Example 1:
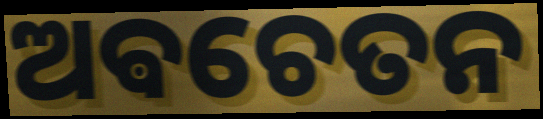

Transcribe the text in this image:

ଅଵଚେତନ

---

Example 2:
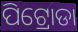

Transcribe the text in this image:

ପିଟ୍ରୋଡା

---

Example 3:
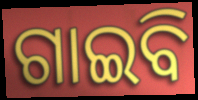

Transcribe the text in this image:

ଗାଇବି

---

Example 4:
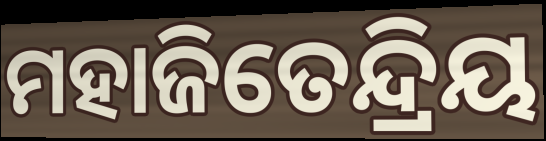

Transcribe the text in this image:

ମହାଜିତେନ୍ଦ୍ରିୟ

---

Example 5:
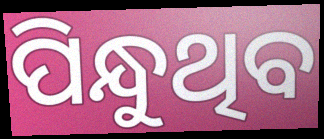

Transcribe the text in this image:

ପିନ୍ଧୁଥିବ